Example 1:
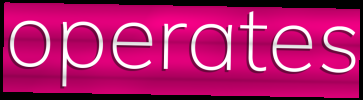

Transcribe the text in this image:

operates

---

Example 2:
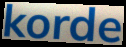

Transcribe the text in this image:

korde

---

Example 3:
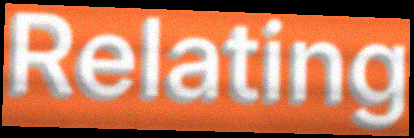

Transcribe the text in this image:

Relating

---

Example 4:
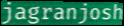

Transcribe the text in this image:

jagranjosh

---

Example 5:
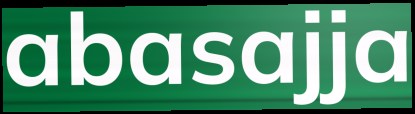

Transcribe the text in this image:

abasajja